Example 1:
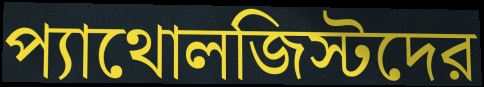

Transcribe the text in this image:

প্যাথোলজিস্টদের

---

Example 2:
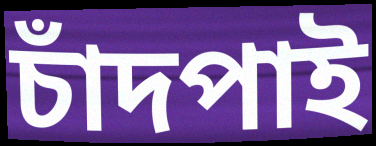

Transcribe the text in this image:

চাঁদপাই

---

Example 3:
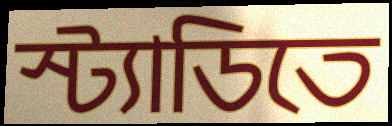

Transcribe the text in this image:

স্ট্যাডিতে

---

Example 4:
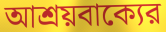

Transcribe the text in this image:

আশ্রয়বাক্যের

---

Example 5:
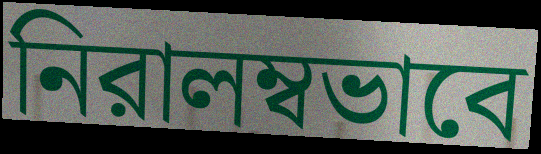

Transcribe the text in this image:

নিরালম্বভাবে